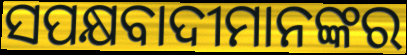
ସପକ୍ଷବାଦୀମାନଙ୍କର